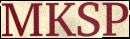
MKSP